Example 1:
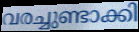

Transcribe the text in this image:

വരച്ചുണ്ടാക്കി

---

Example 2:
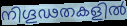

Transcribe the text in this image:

നിഗൂഢതകളിൽ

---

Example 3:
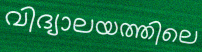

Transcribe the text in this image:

വിദ്യാലയത്തിലെ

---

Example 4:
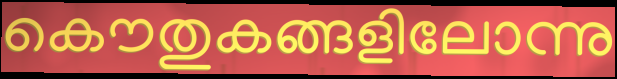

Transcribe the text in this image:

കൌതുകങ്ങളിലോന്നു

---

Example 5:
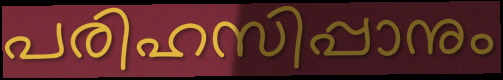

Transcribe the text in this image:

പരിഹസിപ്പാനും